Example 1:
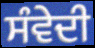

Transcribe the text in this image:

ਸੰਵੇਦੀ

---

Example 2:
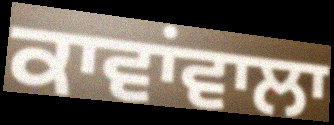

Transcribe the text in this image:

ਕਾਵਾਂਵਾਲਾ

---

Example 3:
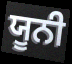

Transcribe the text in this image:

ਯੂਨੀ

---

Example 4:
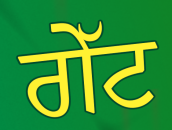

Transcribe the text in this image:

ਗੇੱਟ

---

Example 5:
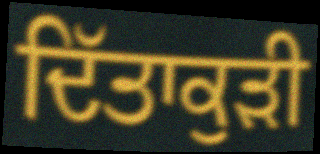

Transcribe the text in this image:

ਦਿੱਤਾਕੁੜੀ